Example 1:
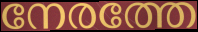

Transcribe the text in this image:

നേരത്തേ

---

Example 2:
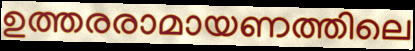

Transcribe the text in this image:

ഉത്തരരാമായണത്തിലെ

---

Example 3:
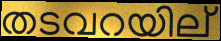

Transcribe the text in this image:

തടവറയില്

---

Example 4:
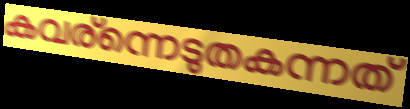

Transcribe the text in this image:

കവര്ന്നെടുതകന്നത്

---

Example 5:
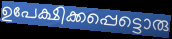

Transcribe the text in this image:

ഉപേക്ഷിക്കപ്പെട്ടൊരു